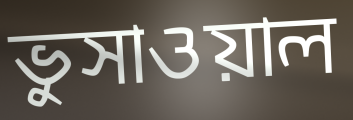
ভুসাওয়াল